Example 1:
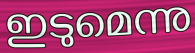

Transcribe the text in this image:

ഇടുമെന്നു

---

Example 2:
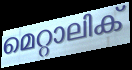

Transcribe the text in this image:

മെറ്റാലിക്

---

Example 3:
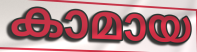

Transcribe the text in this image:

കാമായ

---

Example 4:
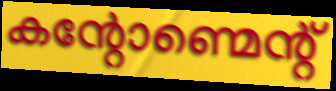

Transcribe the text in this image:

കന്റോണ്മെന്റ്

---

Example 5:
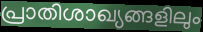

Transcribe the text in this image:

പ്രാതിശാഖ്യങ്ങളിലും